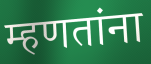
म्हणतांना